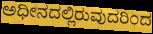
ಅಧೀನದಲ್ಲಿರುವುದರಿಂದ